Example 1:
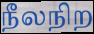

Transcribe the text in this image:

நீலநிற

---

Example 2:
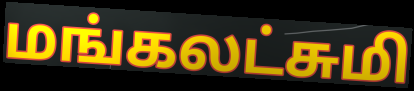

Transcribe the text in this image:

மங்கலட்சுமி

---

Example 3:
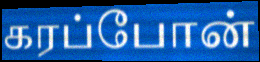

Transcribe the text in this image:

கரப்போன்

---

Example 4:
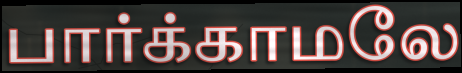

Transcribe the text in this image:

பார்க்காமலே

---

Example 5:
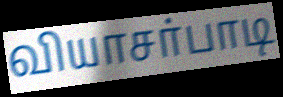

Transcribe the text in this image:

வியாசர்பாடி